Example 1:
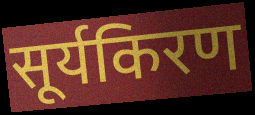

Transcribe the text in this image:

सूर्यकिरण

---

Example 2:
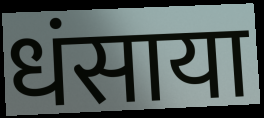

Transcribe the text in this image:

धंसाया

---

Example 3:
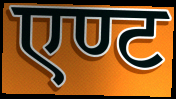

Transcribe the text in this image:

एण्ट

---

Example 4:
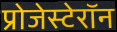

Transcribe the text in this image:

प्रोजेस्टेरॉन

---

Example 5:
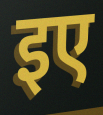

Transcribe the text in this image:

इए